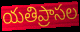
యతిప్రాసల